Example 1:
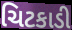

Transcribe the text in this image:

ચિટકાડી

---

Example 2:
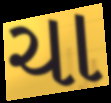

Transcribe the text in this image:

ચા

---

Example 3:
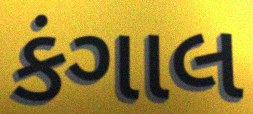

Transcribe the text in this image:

કંગાલ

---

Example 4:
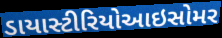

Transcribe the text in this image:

ડાયાસ્ટીરિયોઆઇસોમર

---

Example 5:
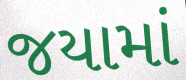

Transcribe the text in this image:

જયામાં